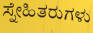
ಸ್ನೇಹಿತರುಗಳು